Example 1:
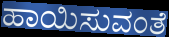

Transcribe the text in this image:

ಹಾಯಿಸುವಂತೆ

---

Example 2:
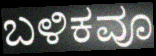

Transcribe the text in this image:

ಬಳಿಕವೂ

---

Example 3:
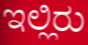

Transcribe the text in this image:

ಇಲ್ಲಿರು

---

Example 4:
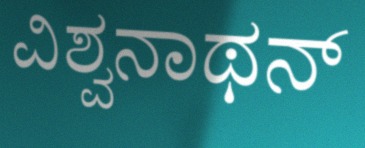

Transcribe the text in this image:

ವಿಶ್ವನಾಥನ್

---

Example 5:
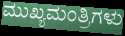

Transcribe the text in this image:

ಮುಖ್ಯಮಂತ್ರಿಗಳು